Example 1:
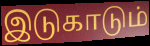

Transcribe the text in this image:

இடுகாடும்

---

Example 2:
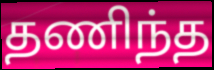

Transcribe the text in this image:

தணிந்த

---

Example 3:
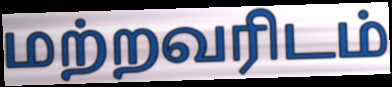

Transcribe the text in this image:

மற்றவரிடம்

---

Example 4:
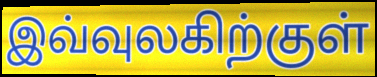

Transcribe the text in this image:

இவ்வுலகிற்குள்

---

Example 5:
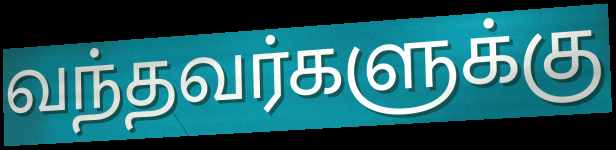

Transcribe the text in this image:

வந்தவர்களுக்கு